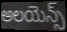
అలయెన్స్